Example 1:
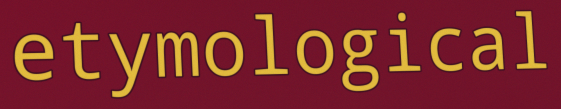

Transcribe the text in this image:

etymological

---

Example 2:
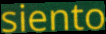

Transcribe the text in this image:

siento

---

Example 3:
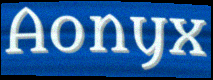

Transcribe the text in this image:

Aonyx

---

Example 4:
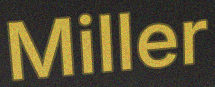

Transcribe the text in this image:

Miller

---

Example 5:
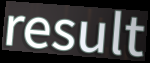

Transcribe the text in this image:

result